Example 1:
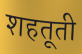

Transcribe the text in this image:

शहतूती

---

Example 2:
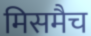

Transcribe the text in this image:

मिसमैच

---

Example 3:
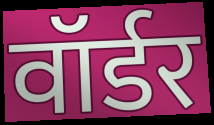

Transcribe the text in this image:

वॉर्डर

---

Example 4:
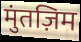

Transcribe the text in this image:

मुंतज़िम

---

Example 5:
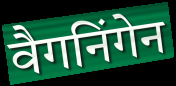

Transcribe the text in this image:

वैगनिंगेन